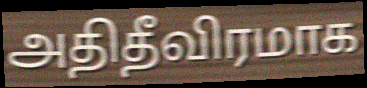
அதிதீவிரமாக